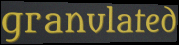
granulated